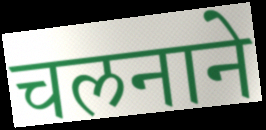
चलनाने